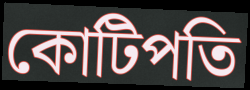
কোটিপতি